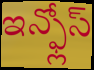
ఇన్ఫ్లోస్